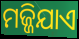
ମଜ୍ଜିଯାଏ